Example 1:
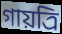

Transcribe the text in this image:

গায়ত্রি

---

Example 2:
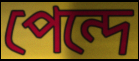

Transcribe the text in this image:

পেন্দে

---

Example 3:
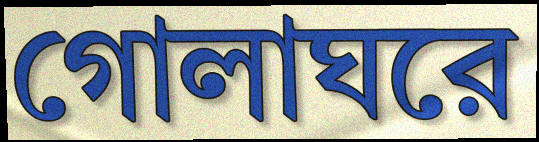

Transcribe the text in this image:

গোলাঘরে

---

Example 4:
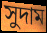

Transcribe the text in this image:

সুদাম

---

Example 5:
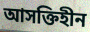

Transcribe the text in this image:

আসক্তিহীন